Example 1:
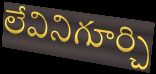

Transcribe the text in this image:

లేవినిగూర్చి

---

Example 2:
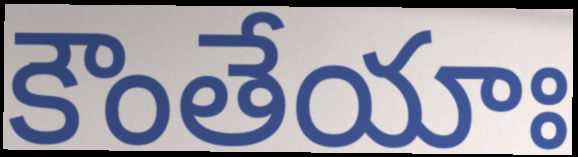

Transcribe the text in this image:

కౌంతేయాః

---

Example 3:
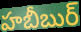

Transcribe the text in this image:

హబీబుర్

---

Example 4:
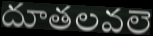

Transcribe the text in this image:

దూతలవలె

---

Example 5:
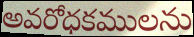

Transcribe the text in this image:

అవరోధకములను